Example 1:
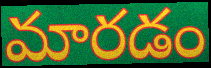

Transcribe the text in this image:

మారడం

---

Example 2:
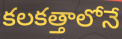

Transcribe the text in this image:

కలకత్తాలోనే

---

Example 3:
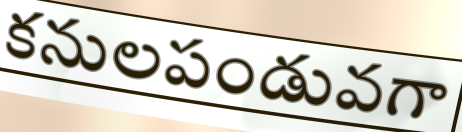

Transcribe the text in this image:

కనులపండువగా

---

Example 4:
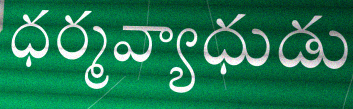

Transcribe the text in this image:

ధర్మవ్యాధుడు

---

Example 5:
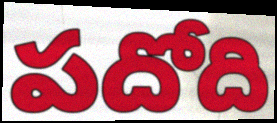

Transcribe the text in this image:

పదోది